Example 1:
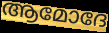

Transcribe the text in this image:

ആമോദേ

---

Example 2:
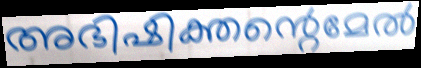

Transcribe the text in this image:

അഭിഷിക്തന്റെമേൽ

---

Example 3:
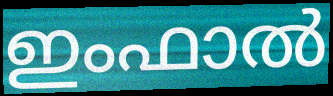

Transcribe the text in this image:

ഇംഫാൽ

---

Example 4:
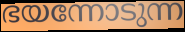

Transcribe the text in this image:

ഭയന്നോടുന്ന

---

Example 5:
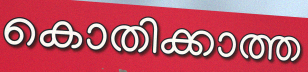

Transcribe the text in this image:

കൊതിക്കാത്ത